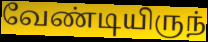
வேண்டியிருந்